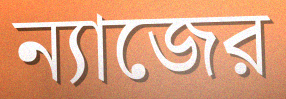
ন্যাজের